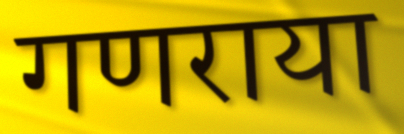
गणराया